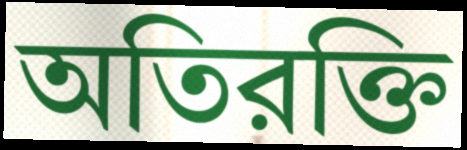
অতিরক্তি